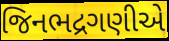
જિનભદ્રગણીએ